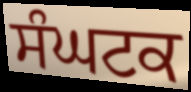
ਸੰਘਟਕ